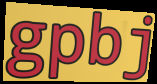
gpbj